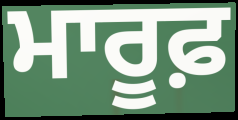
ਮਾਰੂਫ਼